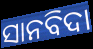
ସାନବିଦା